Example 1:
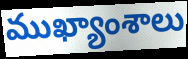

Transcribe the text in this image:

ముఖ్యాంశాలు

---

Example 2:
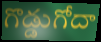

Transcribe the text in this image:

గొడ్డుగోదా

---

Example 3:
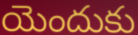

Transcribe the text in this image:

యెందుకు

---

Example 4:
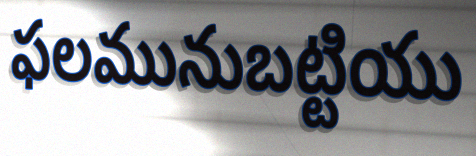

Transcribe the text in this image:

ఫలమునుబట్టియు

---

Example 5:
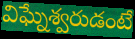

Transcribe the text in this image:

విఘ్నేశ్వరుడంటే